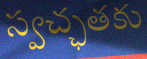
స్వచ్ఛతకు